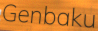
Genbaku